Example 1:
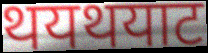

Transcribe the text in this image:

थयथयाट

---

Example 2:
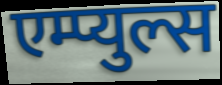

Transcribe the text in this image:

एम्प्युल्स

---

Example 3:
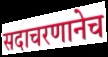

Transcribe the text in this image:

सदाचरणानेच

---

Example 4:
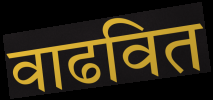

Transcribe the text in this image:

वाढवित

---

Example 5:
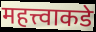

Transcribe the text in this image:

महत्त्वाकडे